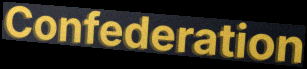
Confederation